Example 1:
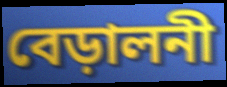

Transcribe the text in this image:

বেড়ালনী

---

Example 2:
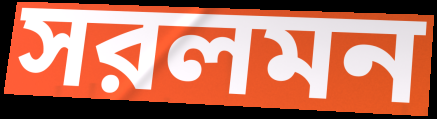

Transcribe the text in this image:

সরলমন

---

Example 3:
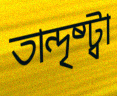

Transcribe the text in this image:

তান্দৃষ্ট্বা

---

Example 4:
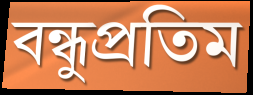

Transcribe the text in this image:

বন্ধুপ্রতিম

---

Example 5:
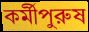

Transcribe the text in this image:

কর্মীপুরুষ